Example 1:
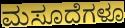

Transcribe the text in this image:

ಮಸೂದೆಗಳೂ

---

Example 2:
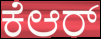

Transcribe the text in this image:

ಕೆಆರ್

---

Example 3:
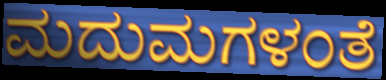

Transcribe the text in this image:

ಮದುಮಗಳಂತೆ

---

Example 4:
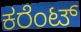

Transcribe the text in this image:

ಕರೆಂಟ್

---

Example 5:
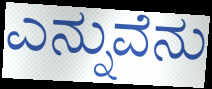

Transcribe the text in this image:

ಎನ್ನುವೆನು